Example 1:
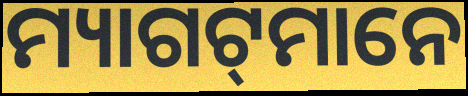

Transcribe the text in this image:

ମ୍ୟାଗଟ୍‌ମାନେ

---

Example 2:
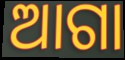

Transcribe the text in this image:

ଆଗା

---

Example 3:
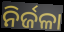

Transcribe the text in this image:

ନିର୍ଜଳା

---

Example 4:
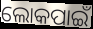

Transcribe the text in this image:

ଲୋକପାଇଁ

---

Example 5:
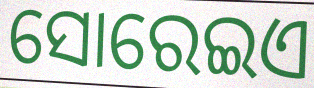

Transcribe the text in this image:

ସୋରେଇଏ